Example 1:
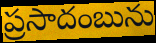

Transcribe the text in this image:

ప్రసాదంబును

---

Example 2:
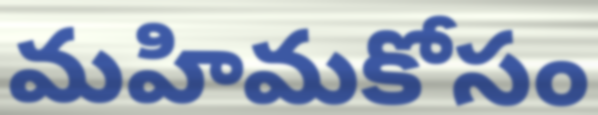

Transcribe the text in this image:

మహిమకోసం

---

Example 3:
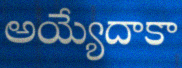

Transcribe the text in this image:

అయ్యేదాకా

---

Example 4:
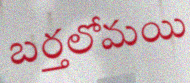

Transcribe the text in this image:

బర్తలోమయి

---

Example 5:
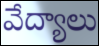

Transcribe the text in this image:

వేద్యాలు